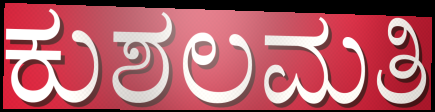
ಕುಶಲಮತಿ